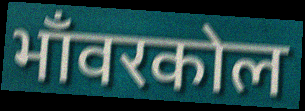
भाँवरकोल